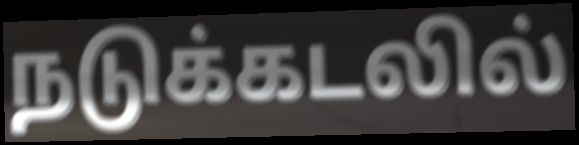
நடுக்கடலில்